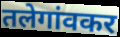
तलेगांवकर